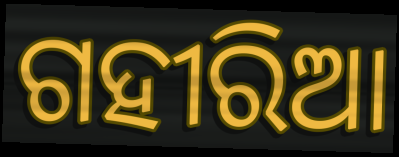
ଗହୀରିଆ